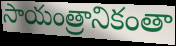
సాయంత్రానికంతా